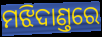
ମଝିଦାଣ୍ତରେ